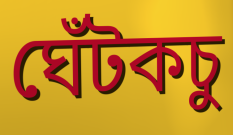
ঘেঁটকচু